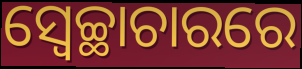
ସ୍ବେଚ୍ଛାଚାରରେ